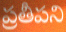
ప్రతీపని